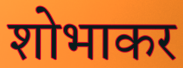
शोभाकर